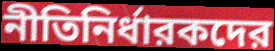
নীতিনির্ধারকদের